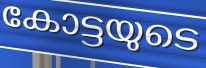
കോട്ടയുടെ